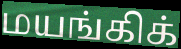
மயங்கிக்